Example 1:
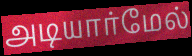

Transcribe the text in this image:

அடியார்மேல்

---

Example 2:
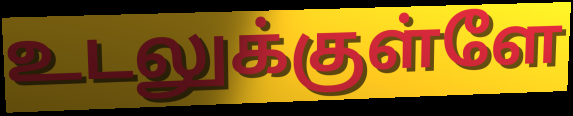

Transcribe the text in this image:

உடலுக்குள்ளே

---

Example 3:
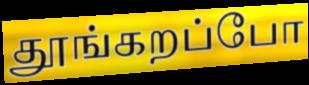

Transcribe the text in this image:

தூங்கறப்போ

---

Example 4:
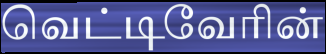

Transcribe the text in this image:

வெட்டிவேரின்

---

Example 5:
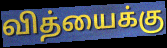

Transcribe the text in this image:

வித்யைக்கு